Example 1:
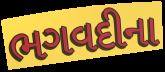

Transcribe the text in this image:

ભગવદીના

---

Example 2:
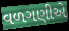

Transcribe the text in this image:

વળગણીએ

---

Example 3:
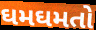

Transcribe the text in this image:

ઘમઘમતો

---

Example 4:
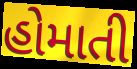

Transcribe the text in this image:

હોમાતી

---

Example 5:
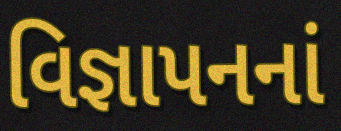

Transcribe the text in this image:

વિજ્ઞાપનનાં